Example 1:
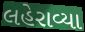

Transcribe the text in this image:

લહેરાવ્યા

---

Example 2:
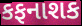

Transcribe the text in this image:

કફનાશક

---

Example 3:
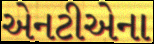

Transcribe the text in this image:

એનટીએના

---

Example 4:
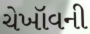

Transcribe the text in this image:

ચેખૉવની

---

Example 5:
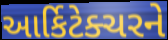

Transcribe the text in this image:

આર્કિટેક્ચરને